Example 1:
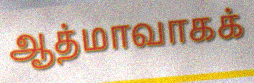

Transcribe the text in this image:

ஆத்மாவாகக்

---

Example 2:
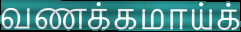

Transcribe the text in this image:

வணக்கமாய்க்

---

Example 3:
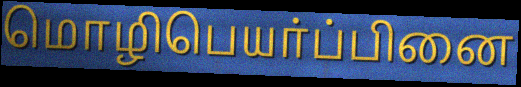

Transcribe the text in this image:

மொழிபெயர்ப்பினை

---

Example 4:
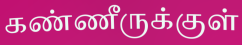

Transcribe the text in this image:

கண்ணீருக்குள்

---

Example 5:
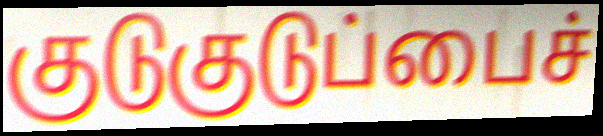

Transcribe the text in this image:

குடுகுடுப்பைச்